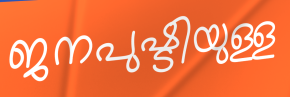
ജനപുഷ്ടിയുള്ള